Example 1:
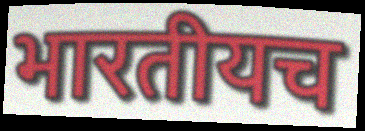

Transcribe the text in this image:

भारतीयच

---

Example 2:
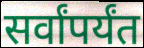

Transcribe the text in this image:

सर्वांपर्यंत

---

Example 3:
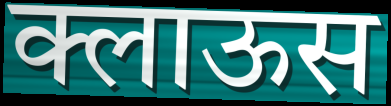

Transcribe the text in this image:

क्लाऊस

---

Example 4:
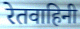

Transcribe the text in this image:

रेतवाहिनी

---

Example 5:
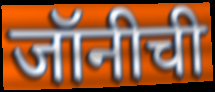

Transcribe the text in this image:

जॉनीची